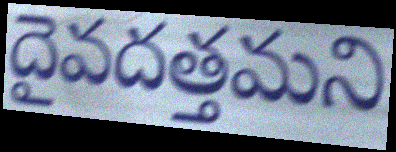
దైవదత్తమని